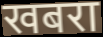
खबरा